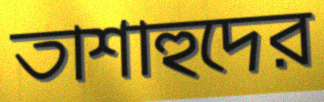
তাশাহুদের